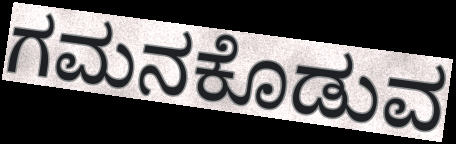
ಗಮನಕೊಡುವ